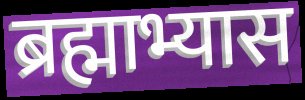
ब्रह्माभ्यास